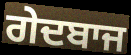
ਗੇਦਬਾਜ